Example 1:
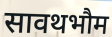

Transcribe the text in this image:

सावथभौम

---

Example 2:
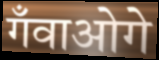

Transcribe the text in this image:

गँवाओगे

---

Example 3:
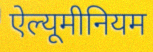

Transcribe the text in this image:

ऐल्यूमीनियम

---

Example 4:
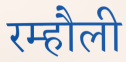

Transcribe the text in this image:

रम्हौली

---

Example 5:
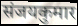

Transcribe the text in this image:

संजयकुमार